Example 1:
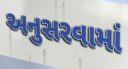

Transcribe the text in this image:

અનુસરવામાં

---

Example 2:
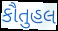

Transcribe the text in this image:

કૌતુહલ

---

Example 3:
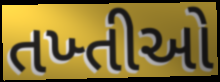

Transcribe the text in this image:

તખ્તીઓ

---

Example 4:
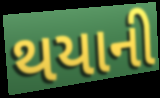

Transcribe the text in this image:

થયાની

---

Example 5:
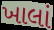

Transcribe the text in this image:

ખાલાં